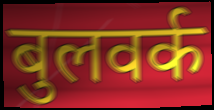
बुलवर्क